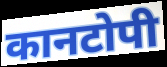
कानटोपी